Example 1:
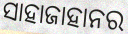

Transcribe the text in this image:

ସାହାଜାହାନର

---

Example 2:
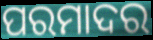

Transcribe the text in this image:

ପରମାଦର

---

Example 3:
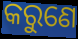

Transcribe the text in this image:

କରୁଣେ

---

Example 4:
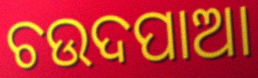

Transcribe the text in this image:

ଚଉଦପାଆ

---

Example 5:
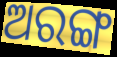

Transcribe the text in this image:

ଅରଙ୍ଗ